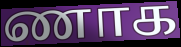
ணாக